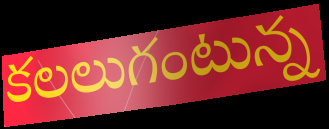
కలలుగంటున్న